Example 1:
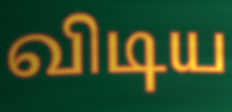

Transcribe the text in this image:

விடிய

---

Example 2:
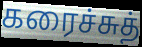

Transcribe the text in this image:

கரைச்சுத்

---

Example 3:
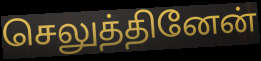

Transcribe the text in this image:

செலுத்தினேன்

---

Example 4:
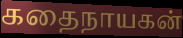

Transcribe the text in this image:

கதைநாயகன்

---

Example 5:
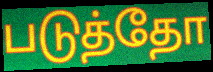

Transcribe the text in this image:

படுத்தோ